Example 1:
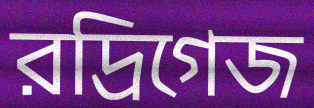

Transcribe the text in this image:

রদ্রিগেজ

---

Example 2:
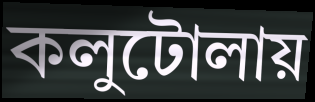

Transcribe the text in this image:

কলুটোলায়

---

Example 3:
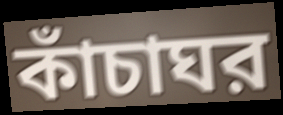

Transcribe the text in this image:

কাঁচাঘর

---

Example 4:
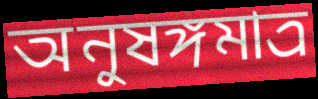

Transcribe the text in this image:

অনুষঙ্গমাত্র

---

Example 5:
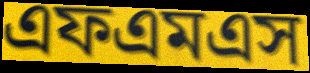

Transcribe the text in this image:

এফএমএস